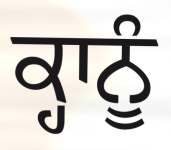
ਕ੍ਹਾਨੂੰ